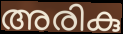
അരികു